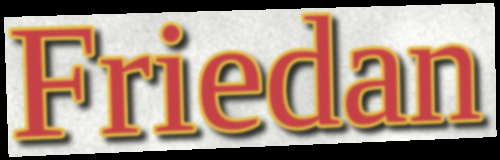
Friedan